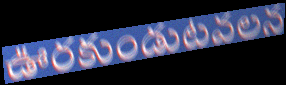
ఊరకుండుటవలన